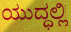
ಯುದ್ಧಲ್ಲಿ